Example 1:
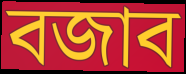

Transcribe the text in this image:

বজাব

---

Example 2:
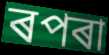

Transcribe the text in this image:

ৰপৰা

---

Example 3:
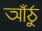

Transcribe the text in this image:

আঁঠু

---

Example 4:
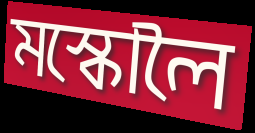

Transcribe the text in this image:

মস্কোলৈ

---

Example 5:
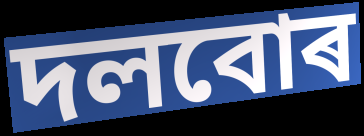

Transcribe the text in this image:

দলবোৰ